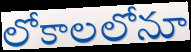
లోకాలలోనూ